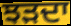
ਝੜਦਾ